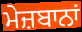
ਮੇਜ਼ਬਾਨਾਂ